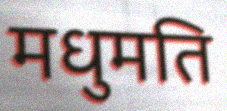
मधुमति